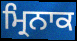
ਮ੍ਰਿਨਾਕ